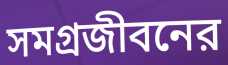
সমগ্রজীবনের